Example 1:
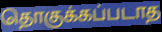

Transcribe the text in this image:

தொகுக்கப்படாத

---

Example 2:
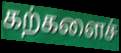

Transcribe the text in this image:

கற்களைச்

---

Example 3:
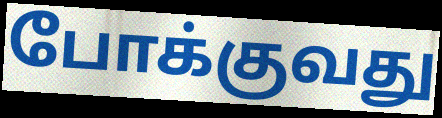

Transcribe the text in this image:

போக்குவது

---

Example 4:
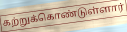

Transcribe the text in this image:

கற்றுக்கொண்டுள்ளார்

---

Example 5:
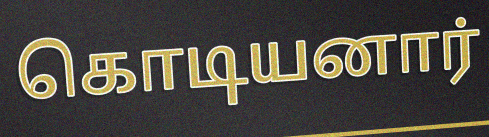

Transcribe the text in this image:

கொடியனார்